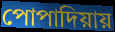
পোপাদিয়ায়